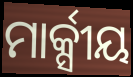
ମାର୍କ୍ସୀୟ